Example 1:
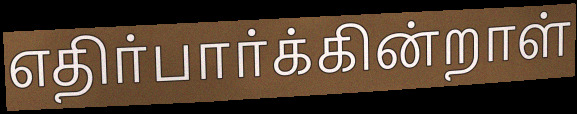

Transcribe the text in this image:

எதிர்பார்க்கின்றாள்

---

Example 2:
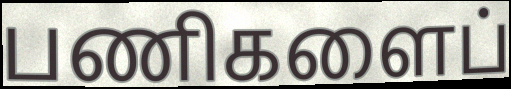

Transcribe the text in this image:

பணிகளைப்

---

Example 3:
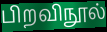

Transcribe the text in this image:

பிறவிநூல்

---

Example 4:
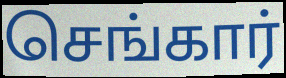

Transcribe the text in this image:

செங்கார்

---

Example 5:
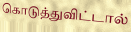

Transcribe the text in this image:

கொடுத்துவிட்டால்